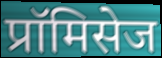
प्रॉमिसेज